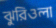
ঝুরিওলা